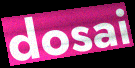
dosai